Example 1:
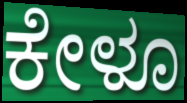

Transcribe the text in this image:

ಕೇಳೂ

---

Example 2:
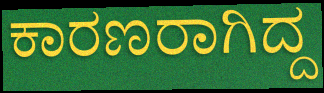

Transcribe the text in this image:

ಕಾರಣರಾಗಿದ್ದ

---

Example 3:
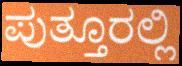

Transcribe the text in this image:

ಪುತ್ತೂರಲ್ಲಿ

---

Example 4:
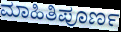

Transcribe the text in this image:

ಮಾಹಿತಿಪೂರ್ಣ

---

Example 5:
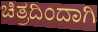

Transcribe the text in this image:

ಚಿತ್ರದಿಂದಾಗಿ